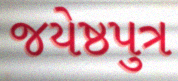
જયેષ્ઠપુત્ર